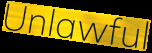
Unlawful